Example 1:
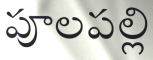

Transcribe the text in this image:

పూలపల్లి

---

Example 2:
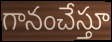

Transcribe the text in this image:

గానంచేస్తూ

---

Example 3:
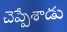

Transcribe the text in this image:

చెప్పేశాడు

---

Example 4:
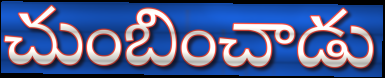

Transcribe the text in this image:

చుంబించాడు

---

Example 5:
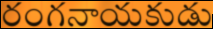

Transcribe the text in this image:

రంగనాయకుడు